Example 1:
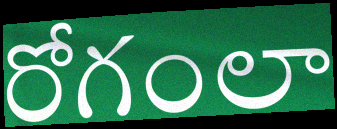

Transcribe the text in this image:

రోగంలా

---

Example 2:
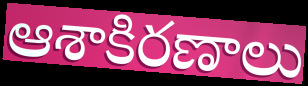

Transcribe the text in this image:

ఆశాకిరణాలు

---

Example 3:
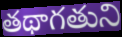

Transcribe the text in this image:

తథాగతుని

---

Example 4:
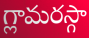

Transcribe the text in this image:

గ్లామరస్గా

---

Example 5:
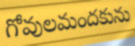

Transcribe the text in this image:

గోవులమందకును